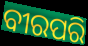
ବୀରପରି